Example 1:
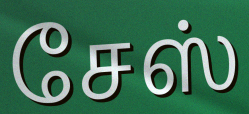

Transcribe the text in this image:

சேஸ்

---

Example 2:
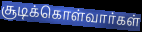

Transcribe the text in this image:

சூடிக்கொள்வார்கள்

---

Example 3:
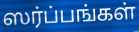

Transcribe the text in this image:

ஸர்ப்பங்கள்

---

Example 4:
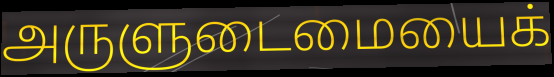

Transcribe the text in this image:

அருளுடைமையைக்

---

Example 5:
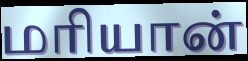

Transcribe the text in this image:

மரியான்